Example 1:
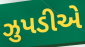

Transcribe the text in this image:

ઝુપડીએ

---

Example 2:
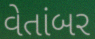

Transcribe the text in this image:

વેતાંબર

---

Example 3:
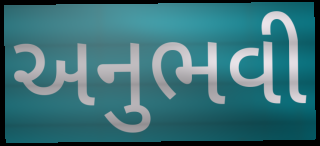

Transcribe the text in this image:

અનુભવી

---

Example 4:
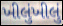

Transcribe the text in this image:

ખીલુંખીલું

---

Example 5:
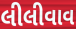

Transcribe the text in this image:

લીલીવાવ